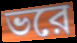
ভরে